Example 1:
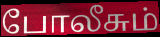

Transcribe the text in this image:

போலீசும்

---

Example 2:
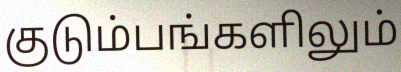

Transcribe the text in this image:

குடும்பங்களிலும்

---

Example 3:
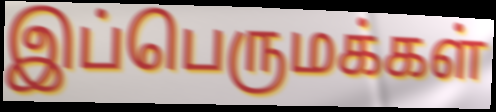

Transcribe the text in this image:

இப்பெருமக்கள்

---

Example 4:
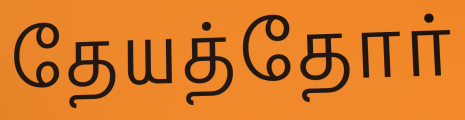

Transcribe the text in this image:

தேயத்தோர்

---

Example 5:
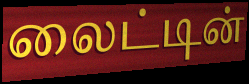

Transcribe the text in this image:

லைட்டின்